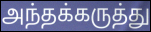
அந்தக்கருத்து